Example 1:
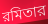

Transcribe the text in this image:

রমিতার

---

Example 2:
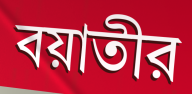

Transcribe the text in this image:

বয়াতীর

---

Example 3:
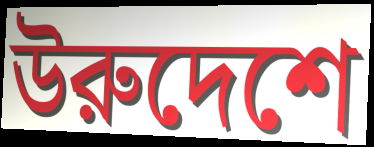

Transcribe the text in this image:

উরুদেশে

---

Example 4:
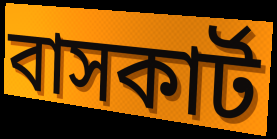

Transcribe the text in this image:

বাসকার্ট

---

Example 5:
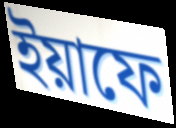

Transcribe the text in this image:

ইয়াফে